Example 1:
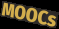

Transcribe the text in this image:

MOOCs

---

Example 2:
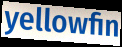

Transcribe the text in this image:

yellowfin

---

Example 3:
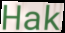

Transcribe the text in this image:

Hak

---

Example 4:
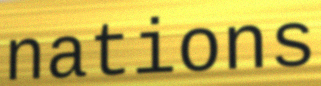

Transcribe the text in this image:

nations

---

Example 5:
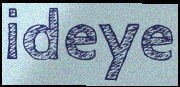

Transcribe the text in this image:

ideye